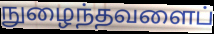
நுழைந்தவளைப்